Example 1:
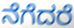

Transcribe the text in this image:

ನೆಗೆದರೆ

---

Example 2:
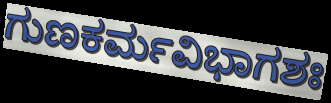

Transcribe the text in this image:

ಗುಣಕರ್ಮವಿಭಾಗಶಃ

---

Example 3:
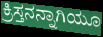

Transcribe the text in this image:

ಕ್ರಿಸ್ತನನ್ನಾಗಿಯೂ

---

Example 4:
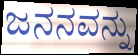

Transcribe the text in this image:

ಜನನವನ್ನು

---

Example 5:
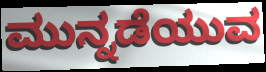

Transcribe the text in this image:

ಮುನ್ನಡೆಯುವ